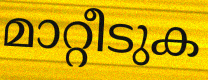
മാറ്റീടുക